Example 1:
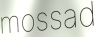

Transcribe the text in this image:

mossad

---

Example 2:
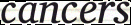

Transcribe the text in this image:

cancers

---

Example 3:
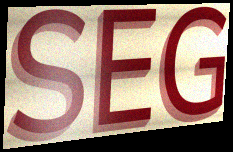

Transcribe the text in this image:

SEG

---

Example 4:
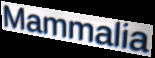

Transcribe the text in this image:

Mammalia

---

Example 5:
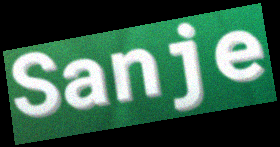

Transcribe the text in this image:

Sanje